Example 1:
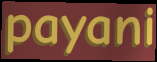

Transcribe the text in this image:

payani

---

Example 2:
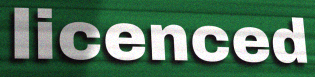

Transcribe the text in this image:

licenced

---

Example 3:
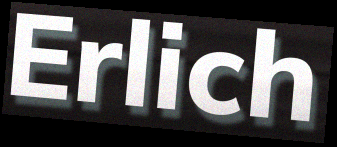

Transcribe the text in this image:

Erlich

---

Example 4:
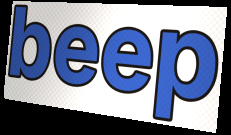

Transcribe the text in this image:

beep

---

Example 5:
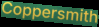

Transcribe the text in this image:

Coppersmith